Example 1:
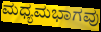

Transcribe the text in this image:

ಮಧ್ಯಮಭಾಗವು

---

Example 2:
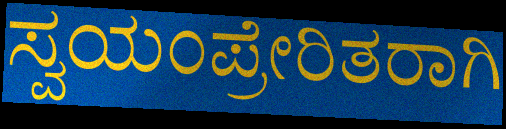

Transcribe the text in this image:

ಸ್ವಯಂಪ್ರೇರಿತರಾಗಿ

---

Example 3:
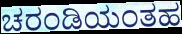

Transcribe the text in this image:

ಚರಂಡಿಯಂತಹ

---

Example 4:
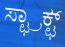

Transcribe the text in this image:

ಸ್ಟ್ರಾಕ್ಟ್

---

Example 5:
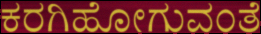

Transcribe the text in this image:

ಕರಗಿಹೋಗುವಂತೆ